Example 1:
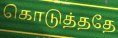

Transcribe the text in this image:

கொடுத்ததே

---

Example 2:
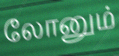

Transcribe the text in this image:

லோனும்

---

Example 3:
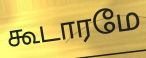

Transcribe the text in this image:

கூடாரமே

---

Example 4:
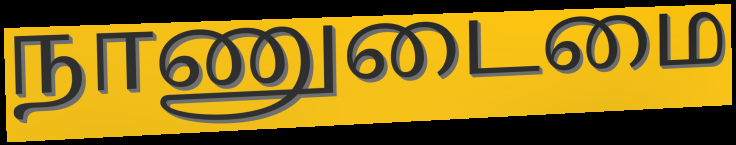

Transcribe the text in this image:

நாணுடைமை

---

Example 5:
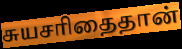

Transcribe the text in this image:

சுயசரிதைதான்